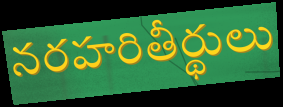
నరహరితీర్థులు